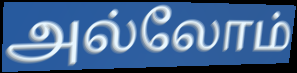
அல்லோம்